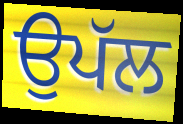
ਉਪੱਲ